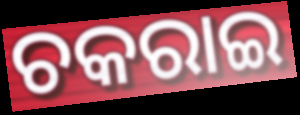
ଚକରାଇ